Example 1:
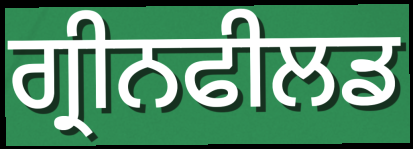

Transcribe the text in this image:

ਗ੍ਰੀਨਫੀਲਡ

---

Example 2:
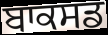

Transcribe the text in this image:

ਬਾਕਸਡ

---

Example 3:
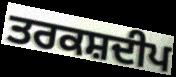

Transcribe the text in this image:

ਤਰਕਸ਼ਦੀਪ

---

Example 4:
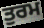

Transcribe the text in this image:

ਤੁਰਮ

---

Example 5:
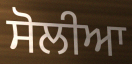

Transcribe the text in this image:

ਸੋਲੀਆ